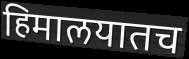
हिमालयातच